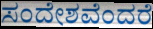
ಸಂದೇಶವೆಂದರೆ